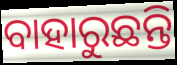
ବାହାରୁଛନ୍ତି